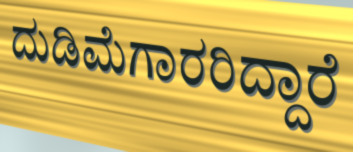
ದುಡಿಮೆಗಾರರಿದ್ದಾರೆ